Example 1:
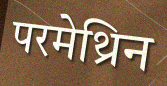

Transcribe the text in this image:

परमेथ्रिन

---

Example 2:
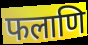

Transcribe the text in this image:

फलाणि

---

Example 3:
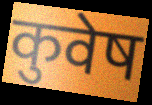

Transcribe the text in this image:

कुवेष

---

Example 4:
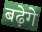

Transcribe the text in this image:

बढ़ेगे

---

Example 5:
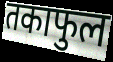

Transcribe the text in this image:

तकाफुल